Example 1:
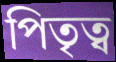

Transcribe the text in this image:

পিতৃত্ব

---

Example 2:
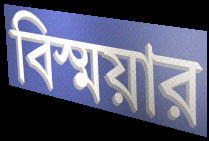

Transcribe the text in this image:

বিস্ময়ার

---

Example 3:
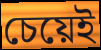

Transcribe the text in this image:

চেয়েই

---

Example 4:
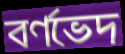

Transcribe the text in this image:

বর্ণভেদ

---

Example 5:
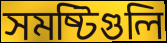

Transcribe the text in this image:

সমষ্টিগুলি